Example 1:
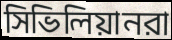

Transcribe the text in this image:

সিভিলিয়ানরা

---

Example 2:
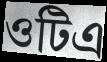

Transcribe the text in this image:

ওটিএ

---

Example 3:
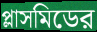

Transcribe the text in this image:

প্লাসমিডের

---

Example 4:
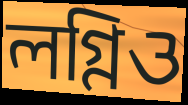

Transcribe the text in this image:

লগ্নিও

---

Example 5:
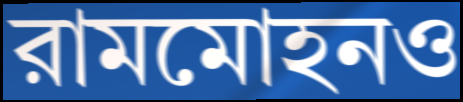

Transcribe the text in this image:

রামমোহনও